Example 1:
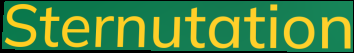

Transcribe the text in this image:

Sternutation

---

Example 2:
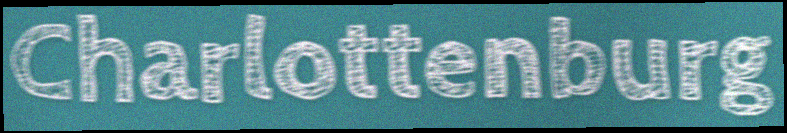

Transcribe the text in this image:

Charlottenburg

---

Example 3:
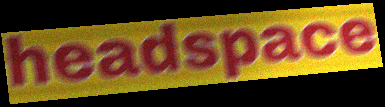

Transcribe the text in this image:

headspace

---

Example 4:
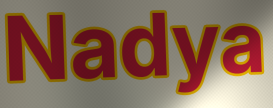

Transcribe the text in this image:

Nadya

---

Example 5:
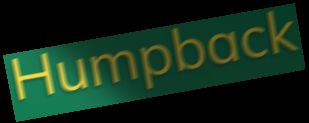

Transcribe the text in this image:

Humpback